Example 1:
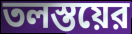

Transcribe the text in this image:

তলস্তয়ের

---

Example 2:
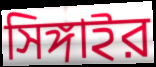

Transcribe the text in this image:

সিঙ্গাইর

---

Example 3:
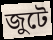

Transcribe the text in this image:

জুটে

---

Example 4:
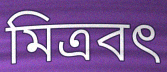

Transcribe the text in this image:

মিত্রবৎ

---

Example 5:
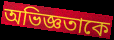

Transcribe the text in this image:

অভিজ্ঞতাকে